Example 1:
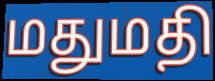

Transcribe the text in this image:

மதுமதி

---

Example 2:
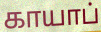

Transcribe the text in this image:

காயாப்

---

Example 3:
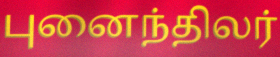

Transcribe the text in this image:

புனைந்திலர்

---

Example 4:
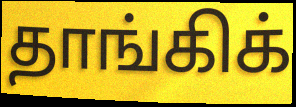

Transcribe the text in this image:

தாங்கிக்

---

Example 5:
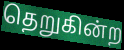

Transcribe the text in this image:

தெறுகின்ற